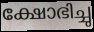
ക്ഷോഭിച്ചു